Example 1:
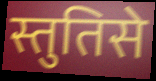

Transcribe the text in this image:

स्तुतिसे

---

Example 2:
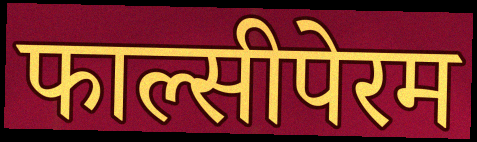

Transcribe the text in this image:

फाल्सीपेरम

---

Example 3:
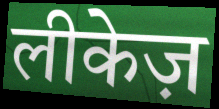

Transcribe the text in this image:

लीकेज़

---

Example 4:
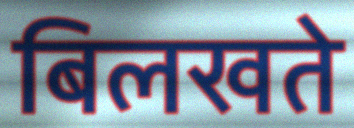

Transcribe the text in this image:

बिलखते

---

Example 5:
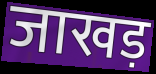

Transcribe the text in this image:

जाखड़